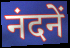
नंदनें